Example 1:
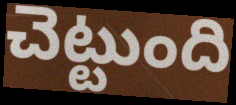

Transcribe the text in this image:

చెట్టుంది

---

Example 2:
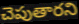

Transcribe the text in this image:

చెపుతారని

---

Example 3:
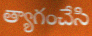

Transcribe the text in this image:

త్యాగంచేసి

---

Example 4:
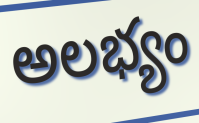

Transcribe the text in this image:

అలభ్యం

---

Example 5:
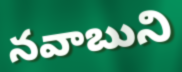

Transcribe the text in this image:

నవాబుని